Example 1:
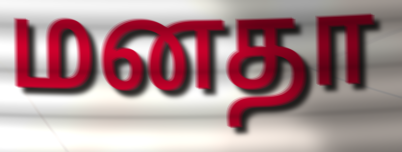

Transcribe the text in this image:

மனதா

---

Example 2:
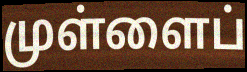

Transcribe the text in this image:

முள்ளைப்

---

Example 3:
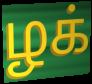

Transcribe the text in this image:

ழக்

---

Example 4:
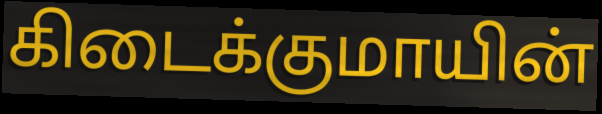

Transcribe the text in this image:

கிடைக்குமாயின்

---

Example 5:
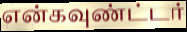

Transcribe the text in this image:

என்கவுண்ட்டர்